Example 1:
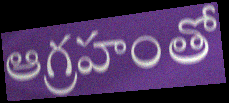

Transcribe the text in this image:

ఆగ్రహంతో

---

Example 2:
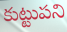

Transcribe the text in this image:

కుట్టుపని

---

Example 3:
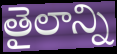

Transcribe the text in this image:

తైలాన్ని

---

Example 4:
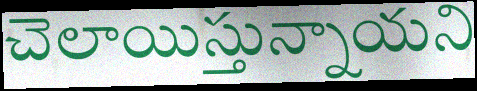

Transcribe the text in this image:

చెలాయిస్తున్నాయని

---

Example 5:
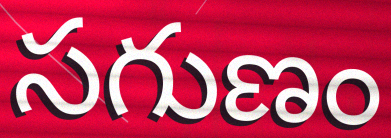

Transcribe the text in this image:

సగుణం